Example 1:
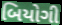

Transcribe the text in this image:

બિયોગી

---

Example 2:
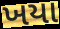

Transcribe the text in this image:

ખયા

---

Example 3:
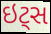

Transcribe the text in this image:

ઇટ્સ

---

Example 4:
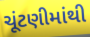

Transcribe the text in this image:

ચૂંટણીમાંથી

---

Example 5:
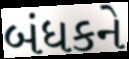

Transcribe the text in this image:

બંધકને